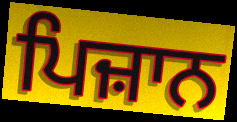
ਪਿਜ਼ਾਨ